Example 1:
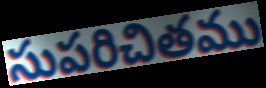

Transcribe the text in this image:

సుపరిచితము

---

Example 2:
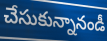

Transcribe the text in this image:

చేసుకున్నానండీ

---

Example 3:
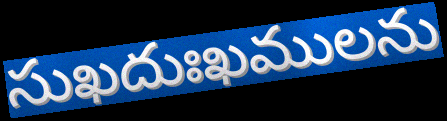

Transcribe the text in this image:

సుఖదుఃఖములను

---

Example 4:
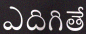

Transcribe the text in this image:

ఎదిగితే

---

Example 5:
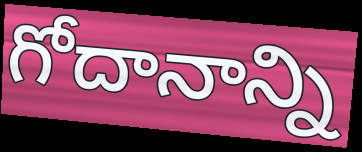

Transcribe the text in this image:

గోదానాన్ని